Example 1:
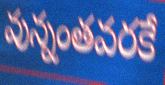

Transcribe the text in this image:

వున్నంతవరకే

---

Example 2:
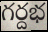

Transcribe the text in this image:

గర్దభ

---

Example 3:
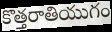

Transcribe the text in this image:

కొత్తరాతియుగం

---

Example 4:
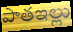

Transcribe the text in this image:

పాతఇల్లు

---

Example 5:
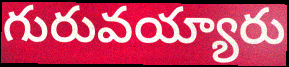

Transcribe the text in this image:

గురువయ్యారు